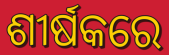
ଶୀର୍ଷକରେ